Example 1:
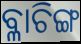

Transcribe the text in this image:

ବ୍ଳାଚିଙ୍ଗ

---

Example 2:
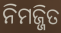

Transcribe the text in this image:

ନିମଜ୍ଜିତ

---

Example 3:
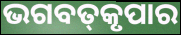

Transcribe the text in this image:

ଭଗବତ୍‌କୃପାର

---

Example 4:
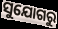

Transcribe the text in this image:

ସୁଯୋଗରୁ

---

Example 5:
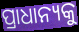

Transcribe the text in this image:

ପ୍ରାଧାନ୍ୟକୁ